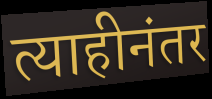
त्याहीनंतर